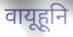
वायूहूनि